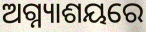
ଅଗ୍ନ୍ୟାଶୟରେ